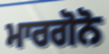
ਮਾਰਗੋਨੋ